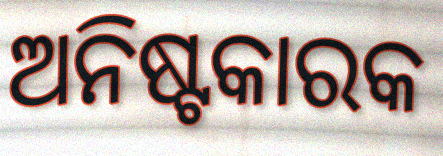
ଅନିଷ୍ଟକାରକ